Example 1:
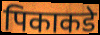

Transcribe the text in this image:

पिकाकडे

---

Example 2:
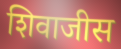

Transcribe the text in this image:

शिवाजीस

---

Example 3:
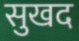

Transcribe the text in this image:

सुखद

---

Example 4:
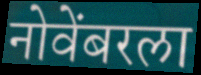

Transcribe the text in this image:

नोवेंबरला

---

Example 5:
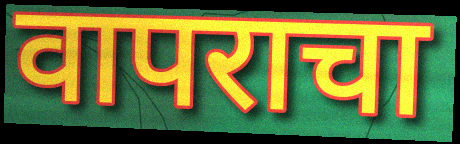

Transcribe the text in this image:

वापराचा